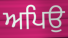
ਅਪਿਉ